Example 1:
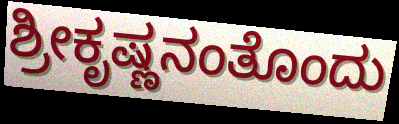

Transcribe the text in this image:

ಶ್ರೀಕೃಷ್ಣನಂತೊಂದು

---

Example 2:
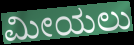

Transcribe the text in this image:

ಮೀಯಲು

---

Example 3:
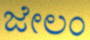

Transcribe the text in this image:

ಜೇಲಂ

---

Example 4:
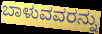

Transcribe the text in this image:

ಬಾಳುವವರನ್ನು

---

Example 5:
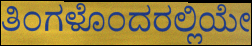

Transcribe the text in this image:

ತಿಂಗಳೊಂದರಲ್ಲಿಯೇ